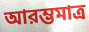
আরম্ভমাত্র